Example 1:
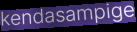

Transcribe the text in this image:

kendasampige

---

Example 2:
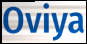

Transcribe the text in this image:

Oviya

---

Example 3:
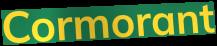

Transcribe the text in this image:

Cormorant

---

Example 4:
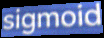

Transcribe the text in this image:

sigmoid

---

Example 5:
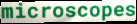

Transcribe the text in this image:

microscopes